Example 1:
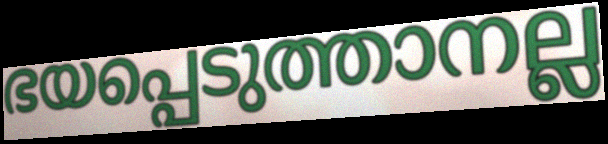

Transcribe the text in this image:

ഭയപ്പെടുത്താനല്ല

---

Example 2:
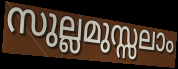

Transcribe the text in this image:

സുല്ലമുസ്സലാം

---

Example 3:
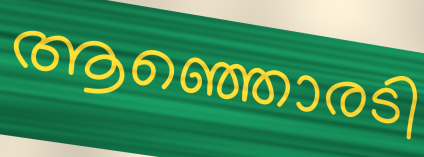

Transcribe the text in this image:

ആഞ്ഞൊരടി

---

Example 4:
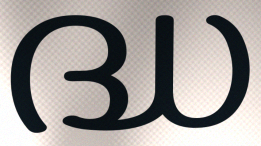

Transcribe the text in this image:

ദ്ധ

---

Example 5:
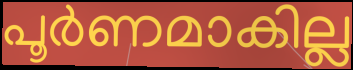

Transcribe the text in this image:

പൂർണമാകില്ല